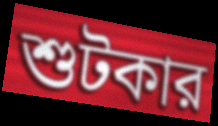
শুটকার